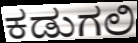
ಕಡುಗಲಿ